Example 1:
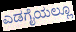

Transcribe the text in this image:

ಎಡಗೈಯಲ್ಲೂ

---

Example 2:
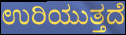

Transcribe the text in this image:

ಉರಿಯುತ್ತದೆ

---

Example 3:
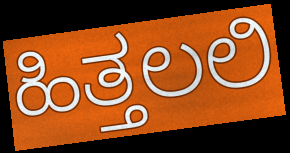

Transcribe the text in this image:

ಹಿತ್ತಲಲಿ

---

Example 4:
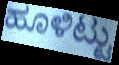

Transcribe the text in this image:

ಹೂಳಿಟ್ಟು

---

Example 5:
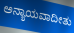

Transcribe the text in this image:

ಅನ್ಯಾಯವಾದೀತು